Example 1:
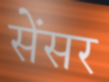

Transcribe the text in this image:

सेंसर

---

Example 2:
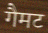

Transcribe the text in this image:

गैमट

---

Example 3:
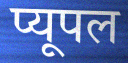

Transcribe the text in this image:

प्यूपल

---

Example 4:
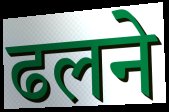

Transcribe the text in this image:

ढलने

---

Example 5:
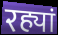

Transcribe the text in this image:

रह्यां